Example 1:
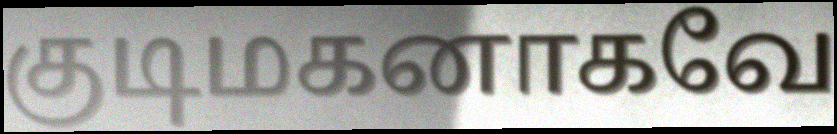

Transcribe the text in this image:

குடிமகனாகவே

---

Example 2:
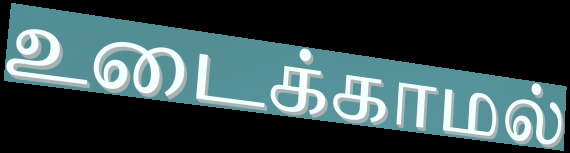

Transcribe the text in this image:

உடைக்காமல்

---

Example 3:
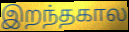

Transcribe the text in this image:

இறந்தகால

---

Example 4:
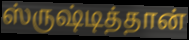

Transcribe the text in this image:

ஸ்ருஷ்டித்தான்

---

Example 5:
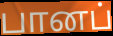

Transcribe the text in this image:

பானப்